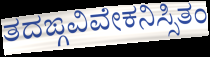
ತದಙ್ಗವಿವೇಕನಿಸ್ಸಿತಂ